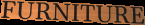
FURNITURE